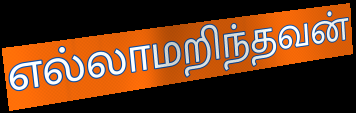
எல்லாமறிந்தவன்